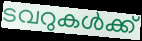
ടവറുകൾക്ക്